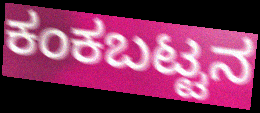
ಕಂಕಬಟ್ಟನ